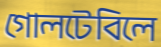
গোলটেবিলে